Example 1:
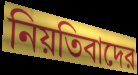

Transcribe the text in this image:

নিয়তিবাদের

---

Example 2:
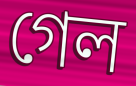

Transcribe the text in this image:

গেল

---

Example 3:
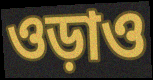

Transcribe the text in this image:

ওড়াও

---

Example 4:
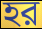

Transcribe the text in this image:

হর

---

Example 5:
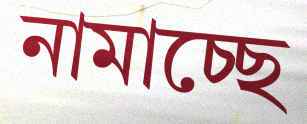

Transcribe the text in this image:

নামাচ্ছে